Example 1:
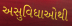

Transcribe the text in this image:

અસુવિધાઓથી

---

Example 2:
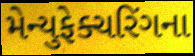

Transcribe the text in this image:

મેન્યુફેક્ચરિંગના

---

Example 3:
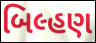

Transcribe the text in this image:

બિલ્હણ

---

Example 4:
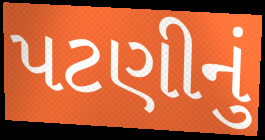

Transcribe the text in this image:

પટણીનું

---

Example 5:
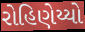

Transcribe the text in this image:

રોહિણેય્યો